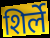
शिर्ले